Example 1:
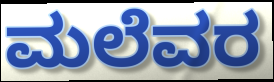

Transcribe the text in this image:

ಮಲೆವರ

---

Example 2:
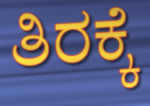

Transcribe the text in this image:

ತಿರಕ್ಕೆ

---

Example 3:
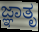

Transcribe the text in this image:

ಜ್ಞಾತೃ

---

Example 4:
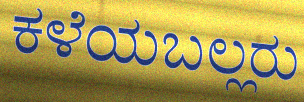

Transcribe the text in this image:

ಕಳೆಯಬಲ್ಲರು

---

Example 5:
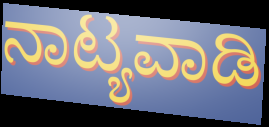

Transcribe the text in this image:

ನಾಟ್ಯವಾಡಿ